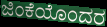
ಜಿಂಕೆಯೊಂದರ